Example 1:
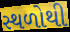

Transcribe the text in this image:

સ્થળોથી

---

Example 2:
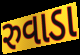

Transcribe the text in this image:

રુવાડા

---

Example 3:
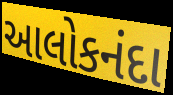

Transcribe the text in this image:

આલોકનંદા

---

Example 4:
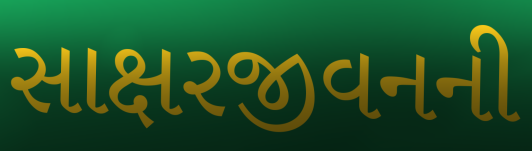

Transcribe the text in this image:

સાક્ષરજીવનની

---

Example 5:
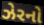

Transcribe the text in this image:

ઝેરનો